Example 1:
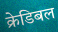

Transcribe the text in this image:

क्रेडिबल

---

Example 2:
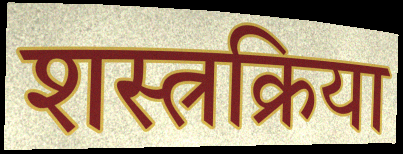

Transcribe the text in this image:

शस्त्रक्रिया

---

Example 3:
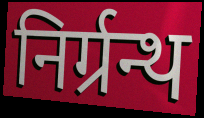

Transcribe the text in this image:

निर्ग्रन्थ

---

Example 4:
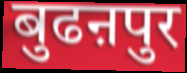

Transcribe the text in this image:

बुढऩपुर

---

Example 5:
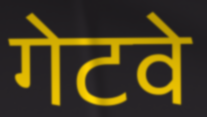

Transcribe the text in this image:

गेटवे